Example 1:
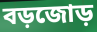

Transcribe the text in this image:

বড়জোড়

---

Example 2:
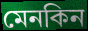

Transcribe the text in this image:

মেনকিন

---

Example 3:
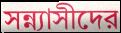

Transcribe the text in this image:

সন্ন্যাসীদের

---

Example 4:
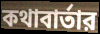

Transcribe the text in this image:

কথাবার্তার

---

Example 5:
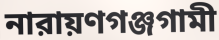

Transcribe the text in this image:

নারায়ণগঞ্জগামী